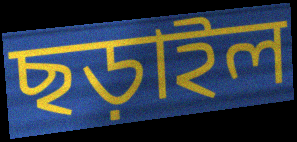
ছড়াইল